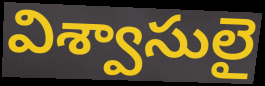
విశ్వాసులై